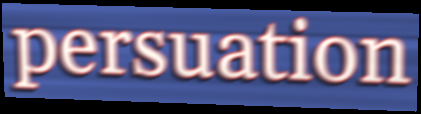
persuation